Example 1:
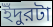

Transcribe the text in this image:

ইঁদুরটা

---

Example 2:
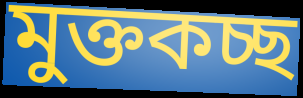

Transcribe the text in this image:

মুক্তকচ্ছ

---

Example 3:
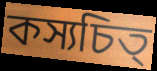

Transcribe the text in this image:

কস্যচিত্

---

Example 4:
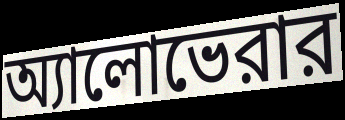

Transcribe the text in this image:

অ্যালোভেরার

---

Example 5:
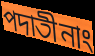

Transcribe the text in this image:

পদাতীনাং